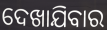
ଦେଖାଯିବାର